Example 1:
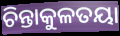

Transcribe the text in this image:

ଚିନ୍ତାକୁଳତୟା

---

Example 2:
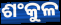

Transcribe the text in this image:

ଶଂକୁଳ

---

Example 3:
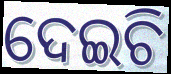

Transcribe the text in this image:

ଦେଇଚି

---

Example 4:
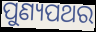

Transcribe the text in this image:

ପୁଣ୍ୟପଥର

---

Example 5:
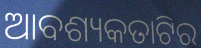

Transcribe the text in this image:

ଆବଶ୍ୟକତାଟିର